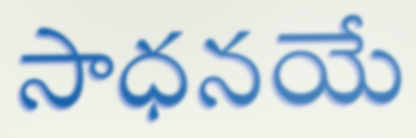
సాధనయే